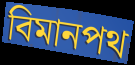
বিমানপথ